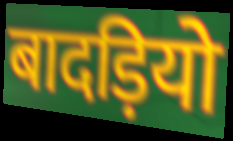
बादड़ियो